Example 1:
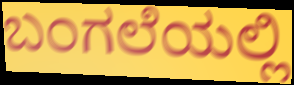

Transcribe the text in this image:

ಬಂಗಲೆಯಲ್ಲಿ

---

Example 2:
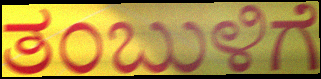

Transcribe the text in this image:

ತಂಬುಳಿಗೆ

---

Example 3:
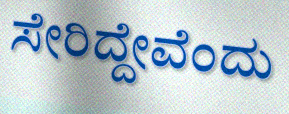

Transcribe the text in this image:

ಸೇರಿದ್ದೇವೆಂದು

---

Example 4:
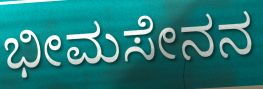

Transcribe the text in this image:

ಭೀಮಸೇನನ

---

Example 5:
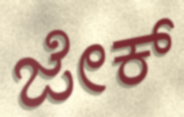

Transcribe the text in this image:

ಜೇಕ್